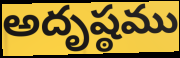
అదృష్ఠము